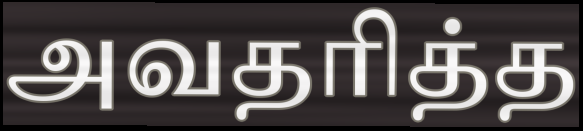
அவதரித்த